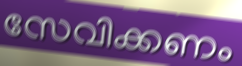
സേവിക്കണം